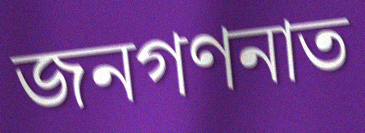
জনগণনাত